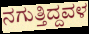
ನಗುತ್ತಿದ್ದವಳ